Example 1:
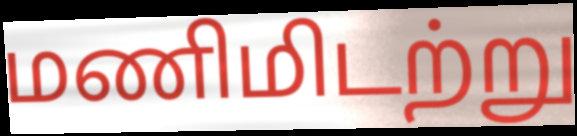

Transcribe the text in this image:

மணிமிடற்று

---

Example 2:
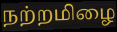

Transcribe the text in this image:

நற்றமிழை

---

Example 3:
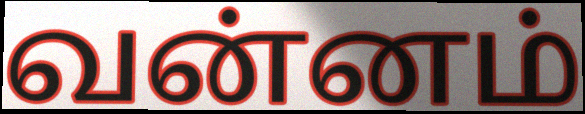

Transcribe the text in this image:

வன்னம்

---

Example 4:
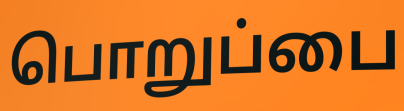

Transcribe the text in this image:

பொறுப்பை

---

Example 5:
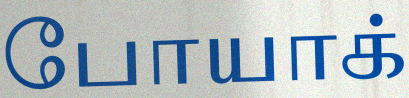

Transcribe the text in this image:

போயாக்